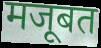
मजूबत